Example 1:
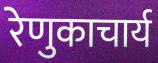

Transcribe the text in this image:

रेणुकाचार्य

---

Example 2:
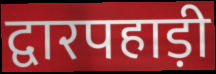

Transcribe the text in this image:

द्वारपहाड़ी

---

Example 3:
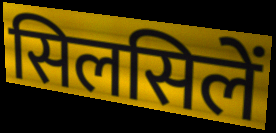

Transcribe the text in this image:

सिलसिलें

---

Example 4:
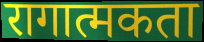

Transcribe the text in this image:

रागात्मकता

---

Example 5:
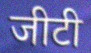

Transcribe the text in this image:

जीटी